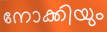
നോക്കിയും